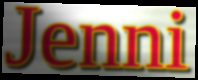
Jenni